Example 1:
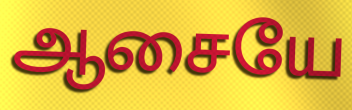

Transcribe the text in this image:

ஆசையே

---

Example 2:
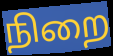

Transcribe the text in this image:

நிறை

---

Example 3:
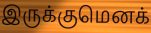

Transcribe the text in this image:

இருக்குமெனக்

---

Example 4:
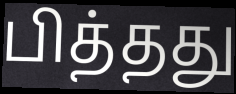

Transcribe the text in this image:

பித்தது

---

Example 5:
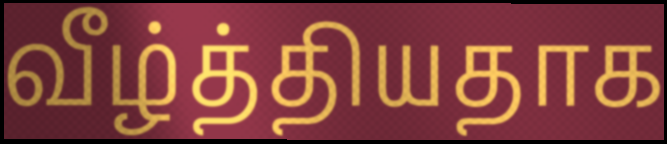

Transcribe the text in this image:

வீழ்த்தியதாக